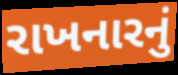
રાખનારનું